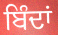
ਬਿੰਦਾਂ